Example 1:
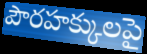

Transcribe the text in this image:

పౌరహక్కులపై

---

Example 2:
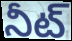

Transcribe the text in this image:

నీట్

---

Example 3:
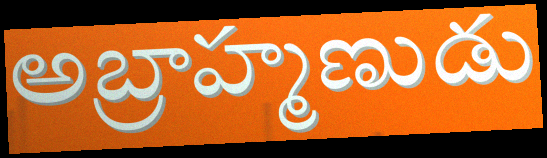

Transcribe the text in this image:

అబ్రాహ్మణుడు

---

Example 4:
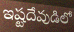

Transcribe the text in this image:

ఇష్టదేవుడిలో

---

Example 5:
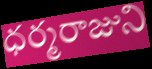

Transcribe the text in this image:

ధర్మరాజుని